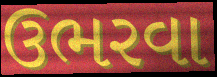
ઉભરવા